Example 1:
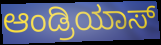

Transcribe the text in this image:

ಆಂಡ್ರಿಯಾಸ್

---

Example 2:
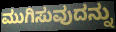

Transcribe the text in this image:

ಮುಗಿಸುವುದನ್ನು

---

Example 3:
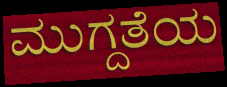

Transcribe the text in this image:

ಮುಗ್ದತೆಯ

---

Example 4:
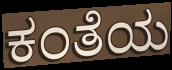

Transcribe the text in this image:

ಕಂತೆಯ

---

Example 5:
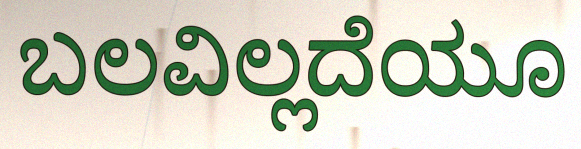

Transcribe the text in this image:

ಬಲವಿಲ್ಲದೆಯೂ